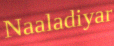
Naaladiyar